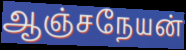
ஆஞ்சநேயன்